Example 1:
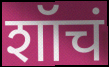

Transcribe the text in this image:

शॉचं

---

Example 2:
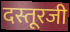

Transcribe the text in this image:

दस्तूरजी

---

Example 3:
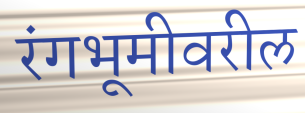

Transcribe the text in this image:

रंगभूमीवरील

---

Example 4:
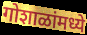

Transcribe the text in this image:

गोशाळांमध्ये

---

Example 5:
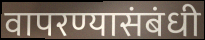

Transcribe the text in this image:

वापरण्यासंबंधी